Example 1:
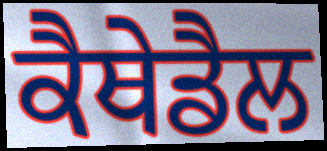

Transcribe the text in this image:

ਕੈਥੇਡੈਲ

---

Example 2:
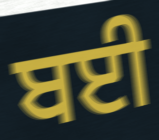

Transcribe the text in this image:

ਬਈ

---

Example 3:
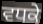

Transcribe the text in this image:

ਵਧਕੇ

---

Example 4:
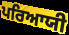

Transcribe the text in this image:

ਪਰਿਆਯੀ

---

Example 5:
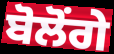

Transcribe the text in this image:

ਬੋਲੋਂਗੇ